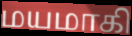
மயமாகி